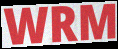
WRM